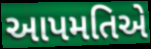
આપમતિએ